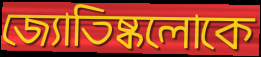
জ্যোতিষ্কলোকে